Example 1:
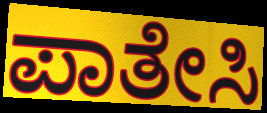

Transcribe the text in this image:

ಪಾತೇಸಿ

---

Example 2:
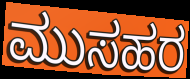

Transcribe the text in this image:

ಮುಸಹರ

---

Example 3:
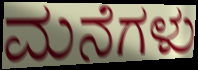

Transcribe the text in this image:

ಮನೆಗಳು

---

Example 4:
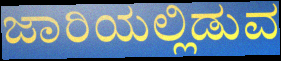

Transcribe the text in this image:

ಜಾರಿಯಲ್ಲಿಡುವ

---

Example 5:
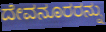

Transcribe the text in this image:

ದೇವನೂರರನ್ನು